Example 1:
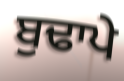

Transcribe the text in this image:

ਬੁਢਾਪੇ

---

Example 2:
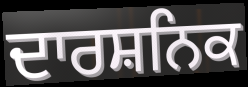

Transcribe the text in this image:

ਦਾਰਸ਼ਨਿਕ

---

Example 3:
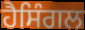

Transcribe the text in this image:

ਹੈਸਿੰਗਲ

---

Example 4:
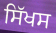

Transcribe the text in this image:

ਸਿੱਖਸ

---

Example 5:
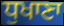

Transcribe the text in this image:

ਧੁਖਾਣਾ